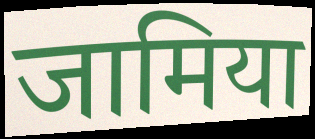
जामिया